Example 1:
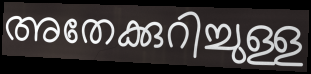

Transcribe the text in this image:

അതേക്കുറിച്ചുള്ള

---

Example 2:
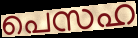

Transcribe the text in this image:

പെസഹ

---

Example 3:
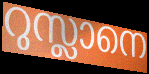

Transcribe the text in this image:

റുസ്ലാനെ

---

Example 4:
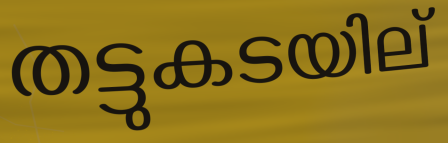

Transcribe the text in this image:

തട്ടുകടയില്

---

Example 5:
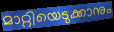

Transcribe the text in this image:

മാറ്റിയെടുക്കാനും